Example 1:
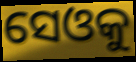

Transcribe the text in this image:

ସେଓକୁ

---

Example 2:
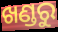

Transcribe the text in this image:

ଖଣ୍ଡରୁ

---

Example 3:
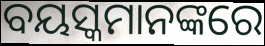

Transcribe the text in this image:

ବୟସ୍କମାନଙ୍କରେ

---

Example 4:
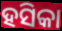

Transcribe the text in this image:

ହସିକା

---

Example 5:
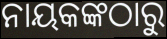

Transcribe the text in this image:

ନାୟକଙ୍କଠାରୁ